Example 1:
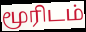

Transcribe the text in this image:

மூரிடம்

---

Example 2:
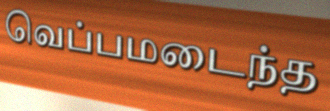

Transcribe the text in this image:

வெப்பமடைந்த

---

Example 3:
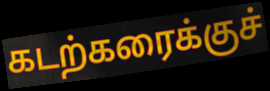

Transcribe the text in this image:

கடற்கரைக்குச்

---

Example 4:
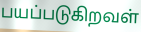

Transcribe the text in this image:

பயப்படுகிறவள்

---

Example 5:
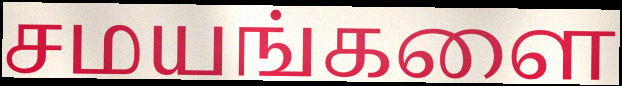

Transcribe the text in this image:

சமயங்களை